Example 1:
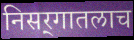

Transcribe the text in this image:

निसर्गातलाच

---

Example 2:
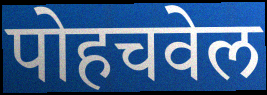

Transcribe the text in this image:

पोहचवेल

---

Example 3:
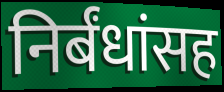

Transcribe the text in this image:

निर्बंधांसह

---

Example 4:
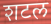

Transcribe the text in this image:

शटल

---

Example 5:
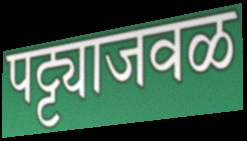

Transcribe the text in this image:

पट्ट्याजवळ